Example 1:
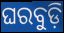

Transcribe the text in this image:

ଘରବୁଡ଼ି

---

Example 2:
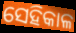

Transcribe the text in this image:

ସେହିକାଳ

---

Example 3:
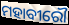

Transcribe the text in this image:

ମହାବୀରୌ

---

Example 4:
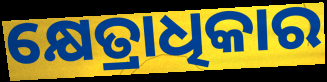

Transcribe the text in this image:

କ୍ଷେତ୍ରାଧିକାର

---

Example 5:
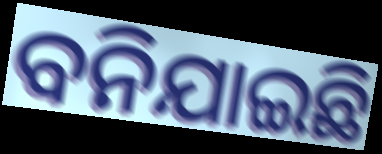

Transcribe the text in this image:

ବନିଯାଇଛି